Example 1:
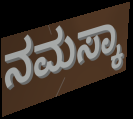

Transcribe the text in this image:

ನಮಸ್ಕಾ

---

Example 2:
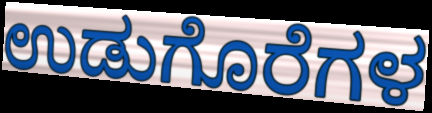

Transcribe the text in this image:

ಉಡುಗೊರೆಗಳ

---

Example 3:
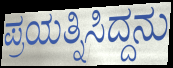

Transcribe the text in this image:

ಪ್ರಯತ್ನಿಸಿದ್ದನು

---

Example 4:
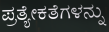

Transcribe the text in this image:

ಪ್ರತ್ಯೇಕತೆಗಳನ್ನು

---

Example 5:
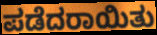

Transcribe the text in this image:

ಪಡೆದರಾಯಿತು